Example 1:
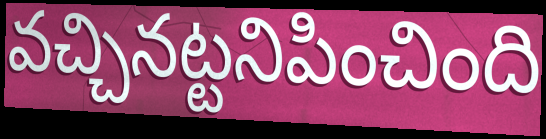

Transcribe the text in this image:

వచ్చినట్టనిపించింది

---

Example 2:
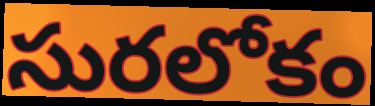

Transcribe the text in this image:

సురలోకం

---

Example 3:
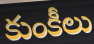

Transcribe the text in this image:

కుంకీలు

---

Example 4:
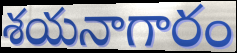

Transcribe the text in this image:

శయనాగారం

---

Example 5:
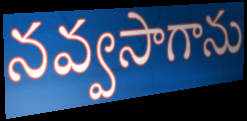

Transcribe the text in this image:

నవ్వసాగాను